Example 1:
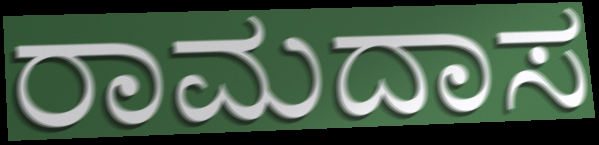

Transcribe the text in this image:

ರಾಮದಾಸ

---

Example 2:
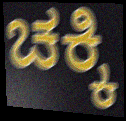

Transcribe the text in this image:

ಚಕ್ಕಿ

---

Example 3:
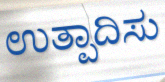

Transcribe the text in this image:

ಉತ್ಪಾದಿಸು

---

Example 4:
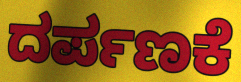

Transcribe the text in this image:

ದರ್ಪಣಕೆ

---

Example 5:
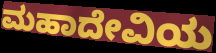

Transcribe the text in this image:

ಮಹಾದೇವಿಯ